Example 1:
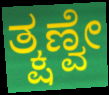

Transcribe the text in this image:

ತ್ಕ್ಷಣ್ವೇ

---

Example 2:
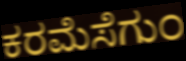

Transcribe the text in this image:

ಕರಮೆಸೆಗುಂ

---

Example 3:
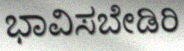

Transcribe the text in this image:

ಭಾವಿಸಬೇಡಿರಿ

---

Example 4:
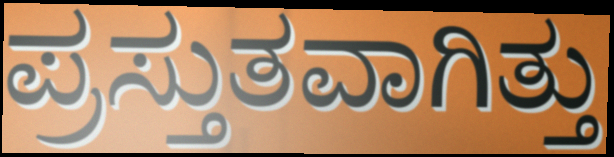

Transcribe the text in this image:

ಪ್ರಸ್ತುತವಾಗಿತ್ತು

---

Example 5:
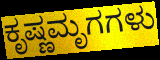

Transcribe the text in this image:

ಕೃಷ್ಣಮೃಗಗಳು